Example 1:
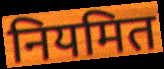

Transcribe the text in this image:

नियमित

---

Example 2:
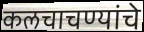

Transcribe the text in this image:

कलचाचण्यांचे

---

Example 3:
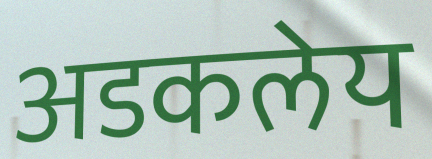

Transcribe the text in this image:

अडकलेय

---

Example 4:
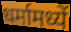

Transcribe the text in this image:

धर्मामध्यें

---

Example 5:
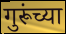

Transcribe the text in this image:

गुरूंच्या